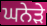
ਘਨੇੜੇ